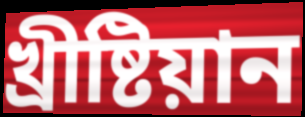
খ্ৰীষ্টিয়ান